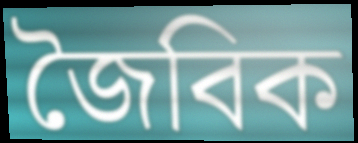
জৈবিক